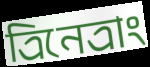
ত্রিনেত্রাং